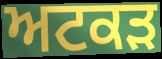
ਅਟਕੜ